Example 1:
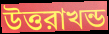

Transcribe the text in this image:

উত্তরাখন্ড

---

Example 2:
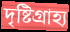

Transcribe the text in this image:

দৃষ্টিগ্রাহ্য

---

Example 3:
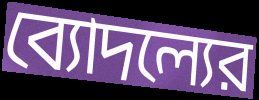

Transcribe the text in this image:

ব্যোদল্যের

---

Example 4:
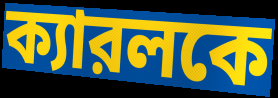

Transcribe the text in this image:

ক্যারলকে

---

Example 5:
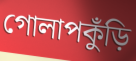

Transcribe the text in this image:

গোলাপকুঁড়ি